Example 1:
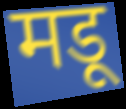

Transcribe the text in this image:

मडू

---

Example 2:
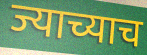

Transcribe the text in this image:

ज्याच्याच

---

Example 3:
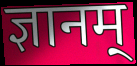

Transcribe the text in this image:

ज्ञानम्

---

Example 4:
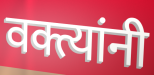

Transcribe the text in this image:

वक्त्यांनी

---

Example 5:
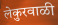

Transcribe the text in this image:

लेकुरवाळी